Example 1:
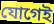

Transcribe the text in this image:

যোগেই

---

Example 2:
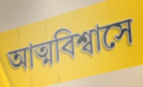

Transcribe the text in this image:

আত্মবিশ্বাসে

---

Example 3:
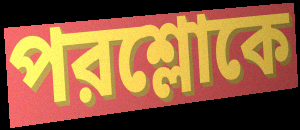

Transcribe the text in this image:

পরশ্লোকে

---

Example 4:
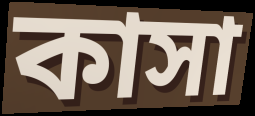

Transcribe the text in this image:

কাসা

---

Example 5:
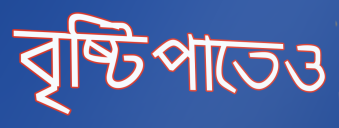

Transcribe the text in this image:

বৃষ্টিপাতেও